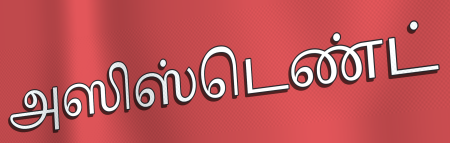
அஸிஸ்டெண்ட்